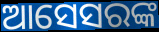
ଆସେସରଙ୍କ